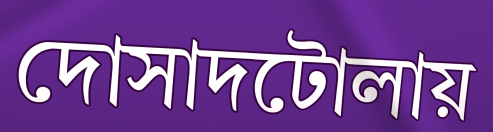
দোসাদটোলায়